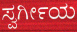
ಸ್ವರ್ಗೀಯ